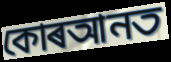
কোৰআনত